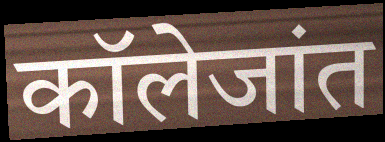
कॉलेजांत